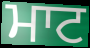
ਮਾਟ